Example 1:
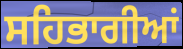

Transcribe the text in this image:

ਸਹਿਭਾਗੀਆਂ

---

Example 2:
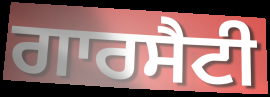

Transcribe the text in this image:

ਗਾਰਸੈਟੀ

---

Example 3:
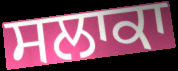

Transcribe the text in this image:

ਸਲਾਕਾ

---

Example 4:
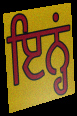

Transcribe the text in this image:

ਇਨ੍ਹਂ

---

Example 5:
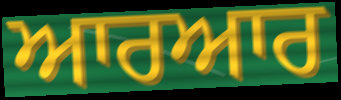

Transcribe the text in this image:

ਆਰਆਰ